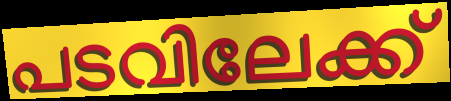
പടവിലേക്ക്